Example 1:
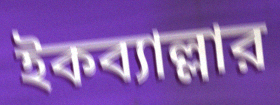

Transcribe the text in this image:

ইকব্যাল্লার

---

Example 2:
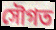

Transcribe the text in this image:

সৌগত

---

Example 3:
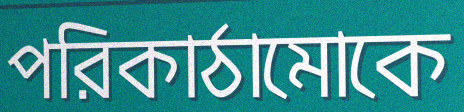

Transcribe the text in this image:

পরিকাঠামোকে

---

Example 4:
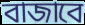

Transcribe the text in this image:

বাজাবে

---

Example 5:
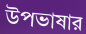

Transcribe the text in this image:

উপভাষার